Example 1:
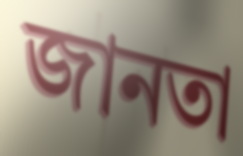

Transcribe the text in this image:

জানতা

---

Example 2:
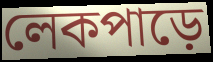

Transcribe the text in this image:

লেকপাড়ে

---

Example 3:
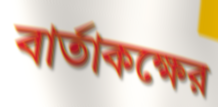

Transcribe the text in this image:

বার্তাকক্ষের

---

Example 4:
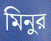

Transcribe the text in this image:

মিনুর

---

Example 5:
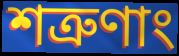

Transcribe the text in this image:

শত্রুণাং